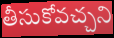
తీసుకోవచ్చని